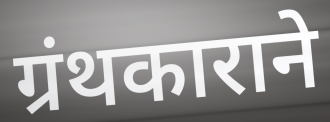
ग्रंथकाराने